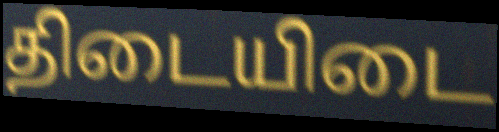
திடையிடை